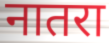
नातरा